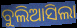
ବୁଲିଆସିଲା